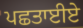
ਪਛਤਾਈਏ